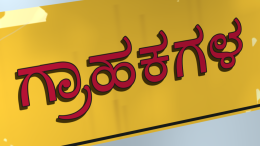
ಗ್ರಾಹಕಗಳ